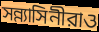
সন্ন্যাসিনীরাও